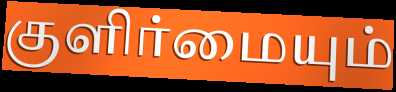
குளிர்மையும்